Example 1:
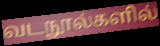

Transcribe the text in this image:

வடநூல்களில்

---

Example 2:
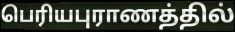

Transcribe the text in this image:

பெரியபுராணத்தில்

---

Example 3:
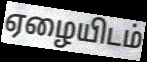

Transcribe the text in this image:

ஏழையிடம்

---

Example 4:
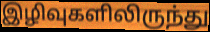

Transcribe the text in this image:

இழிவுகளிலிருந்து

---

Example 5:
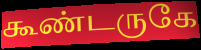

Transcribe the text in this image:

கூண்டருகே